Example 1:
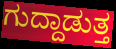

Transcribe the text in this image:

ಗುದ್ದಾಡುತ್ತ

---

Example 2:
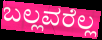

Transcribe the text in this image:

ಬಲ್ಲವರೆಲ್ಲ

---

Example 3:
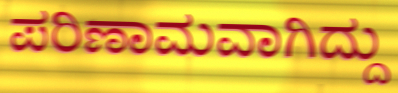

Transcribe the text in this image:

ಪರಿಣಾಮವಾಗಿದ್ದು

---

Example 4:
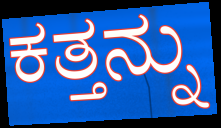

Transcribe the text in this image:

ಕತ್ತನ್ನು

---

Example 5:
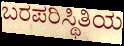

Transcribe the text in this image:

ಬರಪರಿಸ್ಥಿತಿಯ